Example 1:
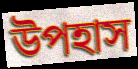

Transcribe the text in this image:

উপহাস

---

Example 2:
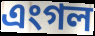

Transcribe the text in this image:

এংগল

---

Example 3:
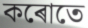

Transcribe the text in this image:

কৰোতে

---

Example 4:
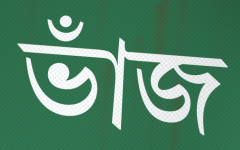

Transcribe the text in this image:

ভাঁজ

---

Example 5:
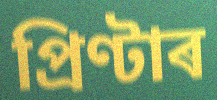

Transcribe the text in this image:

প্ৰিণ্টাৰ